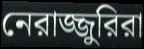
নেরাজ্জুরিরা